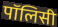
पॉलिसी